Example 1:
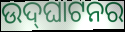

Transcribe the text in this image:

ଉଦ୍‍ଘାଟନର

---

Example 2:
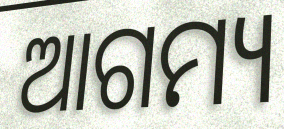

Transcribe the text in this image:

ଆଗମ୍ୟ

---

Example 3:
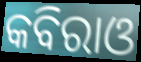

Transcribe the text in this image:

କବିରାଓ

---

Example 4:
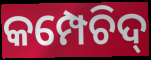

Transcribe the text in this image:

କମ୍ପେଚିଦ୍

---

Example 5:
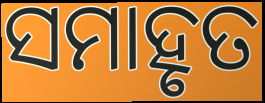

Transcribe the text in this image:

ସମାହୃତ